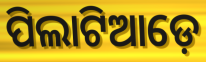
ପିଲାଟିଆଡ଼େ